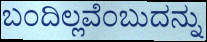
ಬಂದಿಲ್ಲವೆಂಬುದನ್ನು